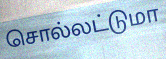
சொல்லட்டுமா